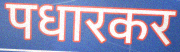
पधारकर